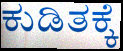
ಕುಡಿತಕ್ಕೆ